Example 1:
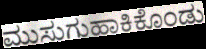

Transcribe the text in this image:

ಮುಸುಗುಹಾಕಿಕೊಂಡು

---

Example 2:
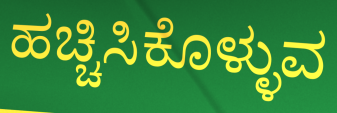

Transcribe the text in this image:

ಹಚ್ಚಿಸಿಕೊಳ್ಳುವ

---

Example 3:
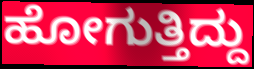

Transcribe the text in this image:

ಹೋಗುತ್ತಿದ್ದು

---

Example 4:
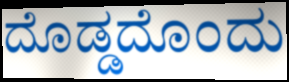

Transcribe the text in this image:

ದೊಡ್ಡದೊಂದು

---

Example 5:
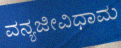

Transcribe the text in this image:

ವನ್ಯಜೀವಿಧಾಮ